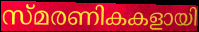
സ്മരണികകളായി